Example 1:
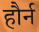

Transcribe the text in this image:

हौर्न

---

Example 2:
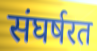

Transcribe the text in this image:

संघर्षरत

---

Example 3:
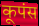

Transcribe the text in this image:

कूपंस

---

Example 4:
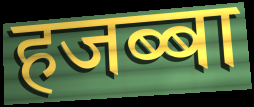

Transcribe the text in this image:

हजब्बा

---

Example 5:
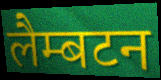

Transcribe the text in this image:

लैम्बटन